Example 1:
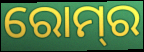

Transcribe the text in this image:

ରୋମ୍‌ର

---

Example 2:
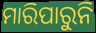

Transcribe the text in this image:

ମାରିପାରୁନି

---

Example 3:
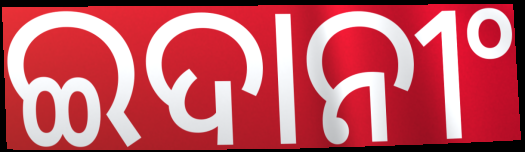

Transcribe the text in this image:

ଇଦାନୀଂ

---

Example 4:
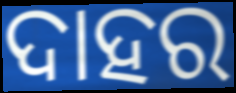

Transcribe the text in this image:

ଦାହର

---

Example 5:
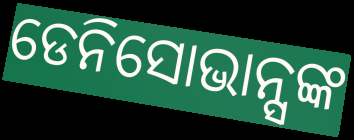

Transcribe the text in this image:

ଡେନିସୋଭାନ୍ସଙ୍କ